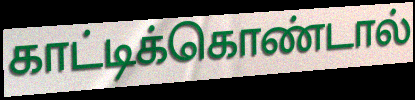
காட்டிக்கொண்டால்